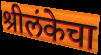
श्रीलंकेचा